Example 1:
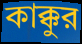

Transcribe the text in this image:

কাক্কুর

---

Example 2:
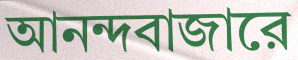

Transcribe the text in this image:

আনন্দবাজারে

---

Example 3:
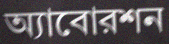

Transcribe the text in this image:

অ্যাবোরশন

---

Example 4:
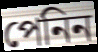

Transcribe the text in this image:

পেনিন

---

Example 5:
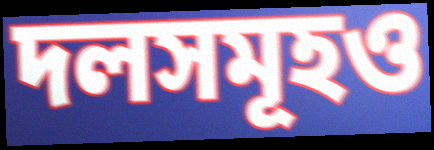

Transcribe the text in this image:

দলসমূহও